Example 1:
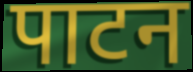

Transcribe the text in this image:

पाटन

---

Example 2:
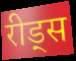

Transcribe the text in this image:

रीड्स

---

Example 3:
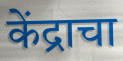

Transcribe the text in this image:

केंद्राचा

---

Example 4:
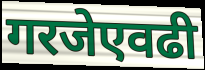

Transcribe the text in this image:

गरजेएवढी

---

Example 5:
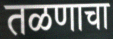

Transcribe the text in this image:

तळणाचा